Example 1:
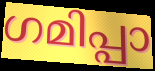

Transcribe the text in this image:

ഗമിപ്പാ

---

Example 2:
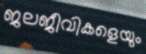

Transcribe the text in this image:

ജലജീവികളെയും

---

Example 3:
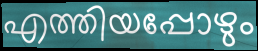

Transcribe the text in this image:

എത്തിയപ്പോഴും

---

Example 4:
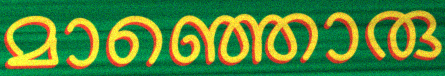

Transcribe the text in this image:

മാഞ്ഞൊരു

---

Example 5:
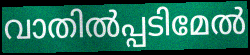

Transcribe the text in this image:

വാതിൽപ്പടിമേൽ